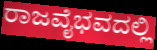
ರಾಜವೈಭವದಲ್ಲಿ